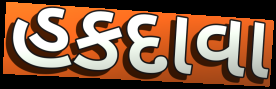
હકદાવા